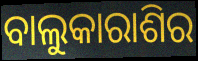
ବାଲୁକାରାଶିର